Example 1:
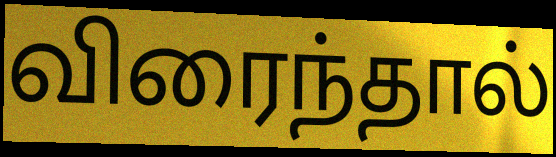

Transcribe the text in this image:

விரைந்தால்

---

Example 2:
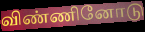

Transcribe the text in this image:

விண்ணினோடு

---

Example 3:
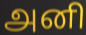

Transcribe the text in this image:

அனி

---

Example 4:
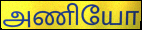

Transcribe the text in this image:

அணியோ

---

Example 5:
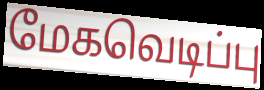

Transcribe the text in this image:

மேகவெடிப்பு